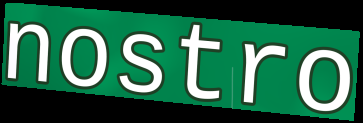
nostro